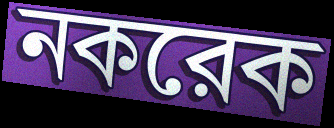
নকরেক